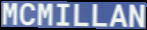
MCMILLAN